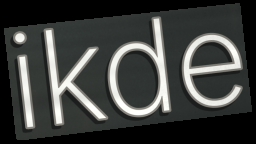
ikde